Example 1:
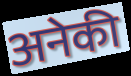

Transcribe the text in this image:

अनेकी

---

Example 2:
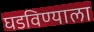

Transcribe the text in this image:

घडविण्याला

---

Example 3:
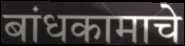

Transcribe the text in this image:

बांधकामाचे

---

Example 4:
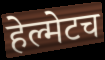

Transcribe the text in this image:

हेल्मेटच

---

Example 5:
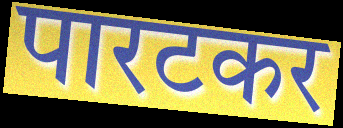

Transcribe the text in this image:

पारटकर